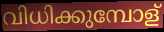
വിധിക്കുമ്പോള്